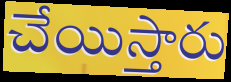
చేయిస్తారు